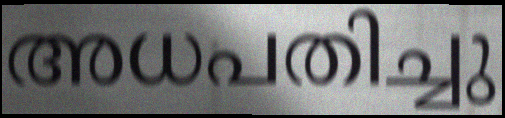
അധപതിച്ചു